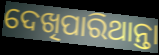
ଦେଖିପାରିଥାନ୍ତା